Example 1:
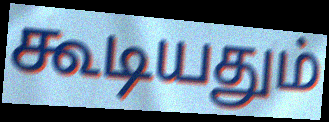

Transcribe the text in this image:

கூடியதும்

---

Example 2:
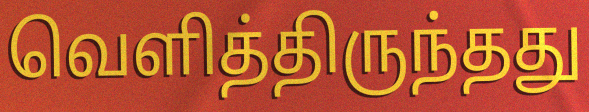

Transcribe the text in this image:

வெளித்திருந்தது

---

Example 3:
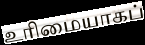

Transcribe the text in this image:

உரிமையாகப்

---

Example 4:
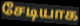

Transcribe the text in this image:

சேடியாக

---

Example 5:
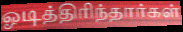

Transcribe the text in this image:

ஓடித்திரிந்தார்கள்